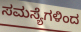
ಸಮಸ್ಯೆಗಳಿಂದ